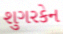
શુગરકેન